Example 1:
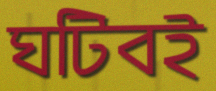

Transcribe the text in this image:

ঘটিবই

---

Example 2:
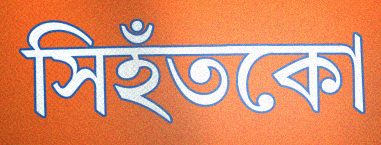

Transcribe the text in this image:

সিহঁতকো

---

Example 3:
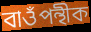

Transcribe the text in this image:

বাওঁপন্থীক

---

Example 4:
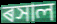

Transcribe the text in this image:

ৰসাল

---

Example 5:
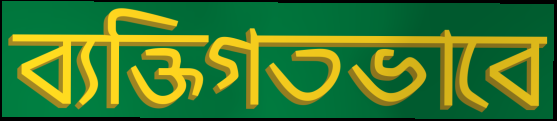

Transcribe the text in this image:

ব্যক্তিগতভাবে